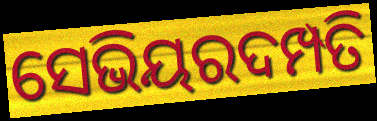
ସେଭିୟରଦମ୍ପତି